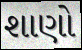
શાણો